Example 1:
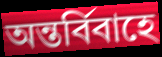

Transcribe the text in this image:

অন্তর্বিবাহে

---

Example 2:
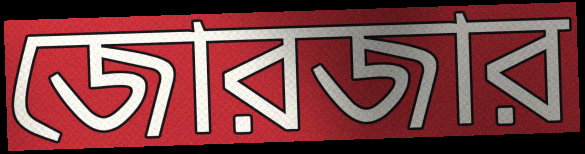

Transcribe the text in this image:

জোরজার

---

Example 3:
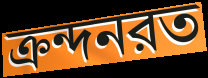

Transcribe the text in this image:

ক্রন্দনরত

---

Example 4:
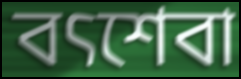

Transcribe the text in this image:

বৎশেবা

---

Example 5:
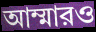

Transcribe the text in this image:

আম্মারও